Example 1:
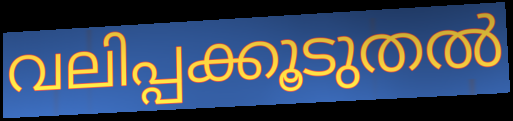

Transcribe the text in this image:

വലിപ്പക്കൂടുതൽ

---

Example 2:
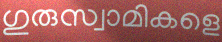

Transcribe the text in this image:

ഗുരുസ്വാമികളെ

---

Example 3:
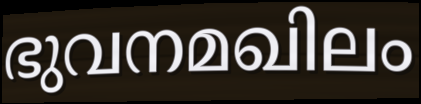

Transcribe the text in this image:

ഭുവനമഖിലം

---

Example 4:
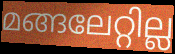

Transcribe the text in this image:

മങ്ങലേറ്റില്ല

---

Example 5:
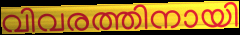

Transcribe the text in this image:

വിവരത്തിനായി